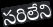
సరిలేని